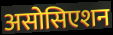
असोसिएशन